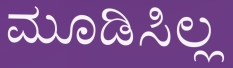
ಮೂಡಿಸಿಲ್ಲ